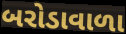
બરોડાવાળા